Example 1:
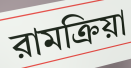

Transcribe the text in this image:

রামক্রিয়া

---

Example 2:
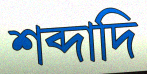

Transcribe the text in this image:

শব্দাদি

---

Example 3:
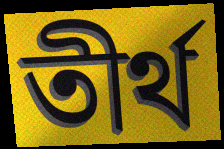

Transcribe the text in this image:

তীর্থ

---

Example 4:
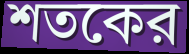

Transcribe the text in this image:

শতকের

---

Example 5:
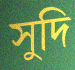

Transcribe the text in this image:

সুদি